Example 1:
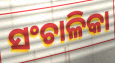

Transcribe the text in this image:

ସଂଚାଳିକା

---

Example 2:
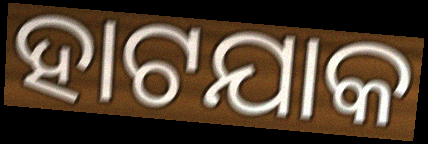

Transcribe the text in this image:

ହାଟଯାକ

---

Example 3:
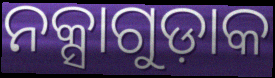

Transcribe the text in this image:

ନକ୍ସାଗୁଡ଼ାକ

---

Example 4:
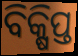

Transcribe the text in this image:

ବିକ୍ଷିପ୍ତ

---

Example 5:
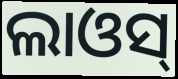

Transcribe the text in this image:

ଲାଓସ୍